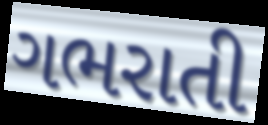
ગભરાતી